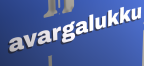
avargalukku